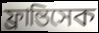
ফ্রান্তিসেক